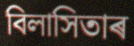
বিলাসিতাৰ